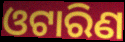
ଓଟାରିଣ